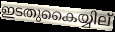
ഇടതുകൈയ്യില്